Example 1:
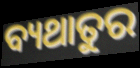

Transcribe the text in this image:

ବ୍ୟଥାତୁର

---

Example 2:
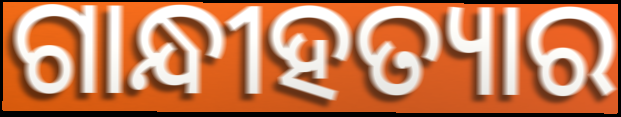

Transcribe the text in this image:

ଗାନ୍ଧୀହତ୍ୟାର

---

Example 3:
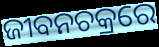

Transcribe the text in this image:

ଜୀବନଚକ୍ରରେ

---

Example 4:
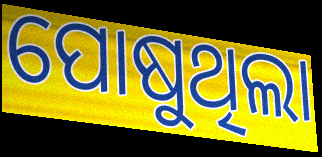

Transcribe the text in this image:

ପୋଷୁଥିଲା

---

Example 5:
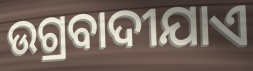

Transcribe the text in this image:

ଉଗ୍ରବାଦୀଯାଏ